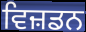
ਵਿਜ਼ਡਨ